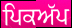
ਪਿਕਅੱਪ